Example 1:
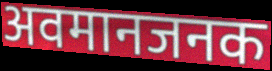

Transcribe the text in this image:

अवमानजनक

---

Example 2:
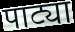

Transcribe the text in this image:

पाट्या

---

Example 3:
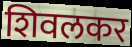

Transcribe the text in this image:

शिवलकर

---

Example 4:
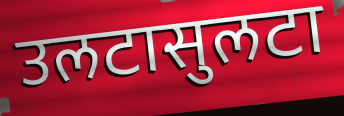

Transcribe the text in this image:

उलटासुलटा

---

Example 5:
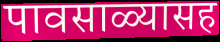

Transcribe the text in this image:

पावसाळ्यासह